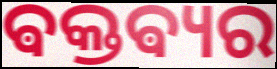
ଵକ୍ତଵ୍ୟର